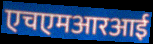
एचएमआरआई